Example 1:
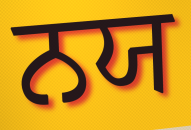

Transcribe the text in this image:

ਨਯ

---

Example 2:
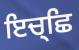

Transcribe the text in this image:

ਇਚ੍ਛਿ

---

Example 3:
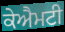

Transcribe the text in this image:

ਕੇਐਮਟੀ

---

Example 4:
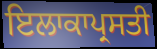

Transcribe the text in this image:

ਇਲਾਕਾਪ੍ਰਸਤੀ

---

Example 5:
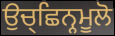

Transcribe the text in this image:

ਉਚ੍ਛਿਨ੍ਨਮੂਲੋ